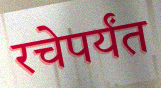
रचेपर्यंत